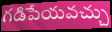
గడిపేయవచ్చు